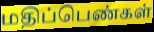
மதிப்பெண்கள்